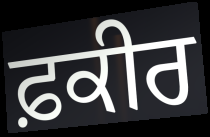
ਫ਼ਕੀਰ